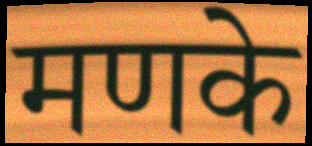
मणके